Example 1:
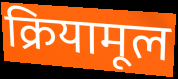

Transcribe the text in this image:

क्रियामूल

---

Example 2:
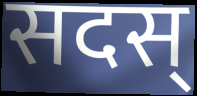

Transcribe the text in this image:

सदस्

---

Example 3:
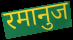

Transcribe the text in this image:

रमानुज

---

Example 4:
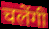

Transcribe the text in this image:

चलेंगी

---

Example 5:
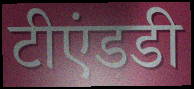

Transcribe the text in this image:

टीएंडडी